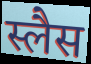
स्लैस